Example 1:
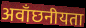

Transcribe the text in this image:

अवाँछनीयता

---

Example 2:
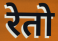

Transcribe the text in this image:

रेतो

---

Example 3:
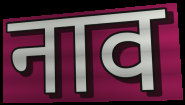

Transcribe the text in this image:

नाव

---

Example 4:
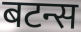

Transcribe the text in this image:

बटन्स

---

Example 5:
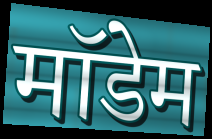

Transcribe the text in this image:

मॉडेम